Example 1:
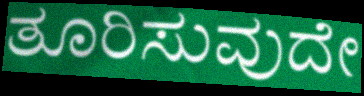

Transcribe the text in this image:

ತೂರಿಸುವುದೇ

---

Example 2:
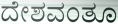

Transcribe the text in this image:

ದೇಶವಂತೂ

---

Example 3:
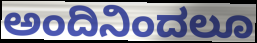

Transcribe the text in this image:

ಅಂದಿನಿಂದಲೂ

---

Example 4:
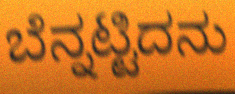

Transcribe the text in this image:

ಬೆನ್ನಟ್ಟಿದನು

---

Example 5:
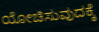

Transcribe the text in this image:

ಯೋಚಿಸುವುದಕ್ಕೆ